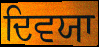
ਦਿਵਯਾ